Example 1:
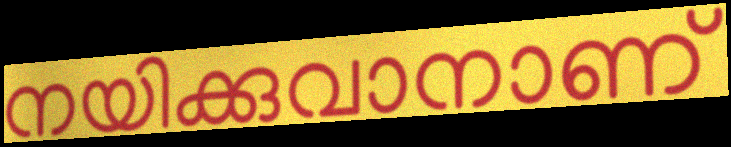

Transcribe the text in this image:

നയിക്കുവാനാണ്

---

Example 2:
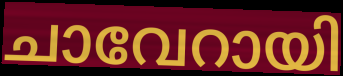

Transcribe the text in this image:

ചാവേറായി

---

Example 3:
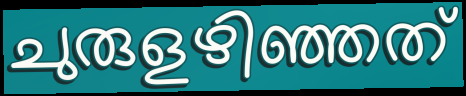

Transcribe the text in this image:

ചുരുളഴിഞ്ഞത്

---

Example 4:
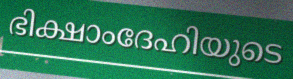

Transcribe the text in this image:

ഭിക്ഷാംദേഹിയുടെ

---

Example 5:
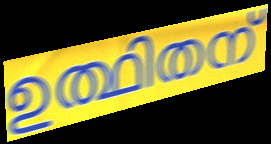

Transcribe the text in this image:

ഉത്ഥിതന്